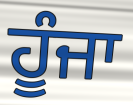
ਹੂੰਜਾ